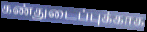
கண்துடைப்புக்காக